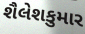
શૈલેશકુમાર